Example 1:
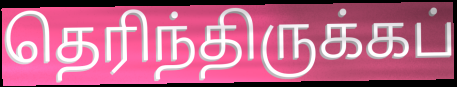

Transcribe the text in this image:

தெரிந்திருக்கப்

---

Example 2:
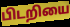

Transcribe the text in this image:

பிடறியை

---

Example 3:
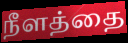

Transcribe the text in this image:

நீளத்தை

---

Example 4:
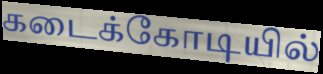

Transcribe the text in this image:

கடைக்கோடியில்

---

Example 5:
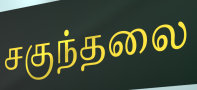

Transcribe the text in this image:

சகுந்தலை